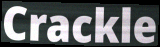
Crackle